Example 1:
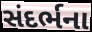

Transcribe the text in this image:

સંદર્ભના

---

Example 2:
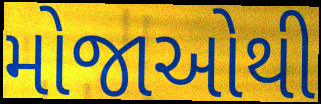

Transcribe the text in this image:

મોજાઓથી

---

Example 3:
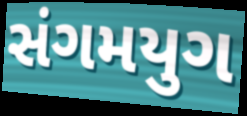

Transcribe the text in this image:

સંગમયુગ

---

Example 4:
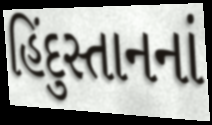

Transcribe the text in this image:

હિંદુસ્તાનનાં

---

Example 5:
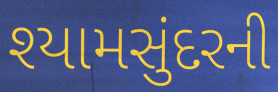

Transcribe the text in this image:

શ્યામસુંદરની